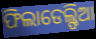
ଫିଲାଡେଲ୍ଫିଆ